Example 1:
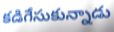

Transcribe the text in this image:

కడిగేసుకున్నాడు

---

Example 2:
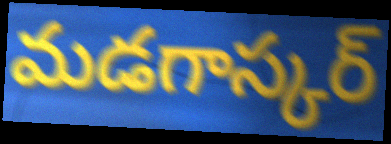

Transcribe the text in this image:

మడగాస్కర్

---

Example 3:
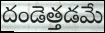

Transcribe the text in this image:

దండెత్తడమే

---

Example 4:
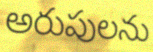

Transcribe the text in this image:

అరుపులను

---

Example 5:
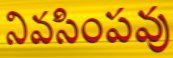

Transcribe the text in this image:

నివసింపవు